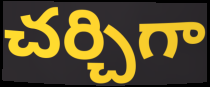
చర్చిగా